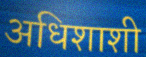
अधिशाशी